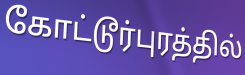
கோட்டூர்புரத்தில்